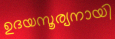
ഉദയസൂര്യനായി